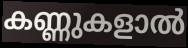
കണ്ണുകളാൽ